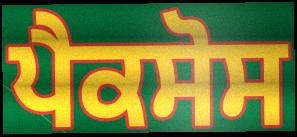
ਪੈਕਸੋਸ